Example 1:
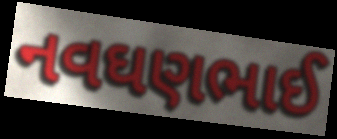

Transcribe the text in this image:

નવઘણભાઈ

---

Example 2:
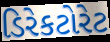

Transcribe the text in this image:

ડિરેકટોરેટ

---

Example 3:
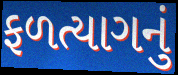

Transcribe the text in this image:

ફળત્યાગનું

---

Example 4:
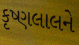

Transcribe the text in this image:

કૃષ્ણલાલને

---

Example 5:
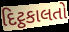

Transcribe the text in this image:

દિટ્ઠકાલતો